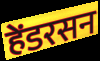
हेंडरसन